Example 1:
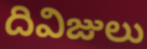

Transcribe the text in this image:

దివిజులు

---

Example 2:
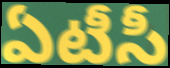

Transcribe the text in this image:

ఏటీసీ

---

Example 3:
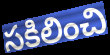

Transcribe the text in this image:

సకిలించి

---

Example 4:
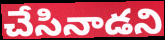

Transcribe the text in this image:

చేసినాడని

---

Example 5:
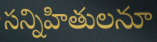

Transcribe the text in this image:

సన్నిహితులనూ